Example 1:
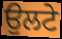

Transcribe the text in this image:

ਉਲਟੇ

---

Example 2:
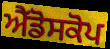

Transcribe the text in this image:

ਐਂਡੋਸਕੋਪ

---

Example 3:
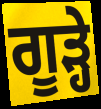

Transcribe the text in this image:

ਗੂੜ੍ਹੇ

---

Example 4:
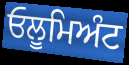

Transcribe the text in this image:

ਓਲੂਮਿਅੰਟ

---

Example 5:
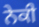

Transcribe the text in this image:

ਨੇਕੀ